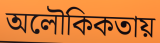
অলৌকিকতায়